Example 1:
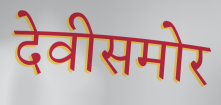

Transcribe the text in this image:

देवीसमोर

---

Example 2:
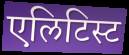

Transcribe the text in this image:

एलिटिस्ट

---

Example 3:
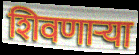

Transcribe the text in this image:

शिवणाऱ्या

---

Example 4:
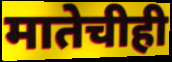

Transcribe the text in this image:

मातेचीही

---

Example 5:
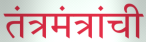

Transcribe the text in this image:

तंत्रमंत्रांची